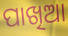
ପାଖିଆ